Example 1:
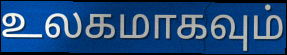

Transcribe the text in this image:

உலகமாகவும்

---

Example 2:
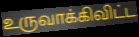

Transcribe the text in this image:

உருவாக்கிவிட்ட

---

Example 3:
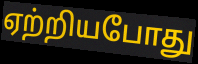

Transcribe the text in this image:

ஏற்றியபோது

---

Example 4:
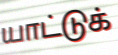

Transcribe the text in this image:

யாட்டுக்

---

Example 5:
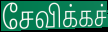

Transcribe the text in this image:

சேவிக்கச்